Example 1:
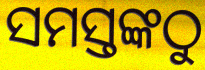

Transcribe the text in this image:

ସମସ୍ତଙ୍କଠୁ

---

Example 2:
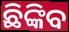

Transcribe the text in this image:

ଛିଙ୍କିବ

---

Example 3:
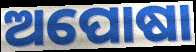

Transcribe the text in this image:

ଅପୋଷା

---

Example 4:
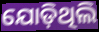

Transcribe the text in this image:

ଯୋଡ଼ିଥିଲି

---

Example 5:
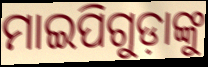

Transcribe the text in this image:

ମାଇପିଗୁଡ଼ାଙ୍କୁ